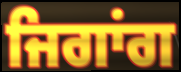
ਜਿਗਾਂਗ